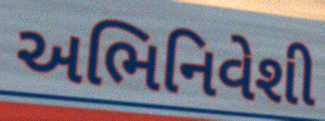
અભિનિવેશી